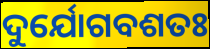
ଦୁର୍ଯୋଗବଶତଃ